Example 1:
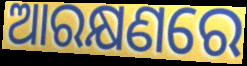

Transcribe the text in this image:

ଆରକ୍ଷଣରେ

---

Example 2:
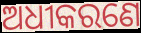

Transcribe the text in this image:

ଅଧୀକରଣେ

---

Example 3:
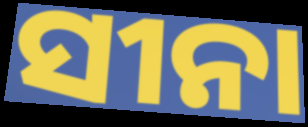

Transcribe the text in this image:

ସୀନା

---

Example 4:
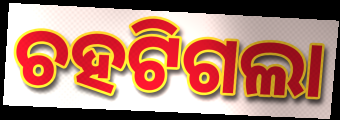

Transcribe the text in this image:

ଚହଟିଗଲା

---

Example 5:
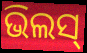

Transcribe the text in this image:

ଭିଲସ୍